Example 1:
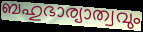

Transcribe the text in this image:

ബഹുഭാര്യാത്വവും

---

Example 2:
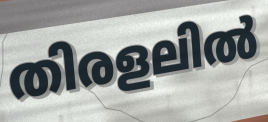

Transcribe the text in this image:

തിരളലിൽ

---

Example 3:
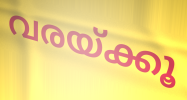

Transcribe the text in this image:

വരയ്ക്കൂ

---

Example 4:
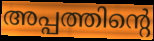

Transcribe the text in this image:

അപ്പത്തിന്റെ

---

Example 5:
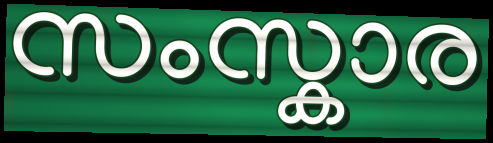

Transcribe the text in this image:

സംസ്കാര